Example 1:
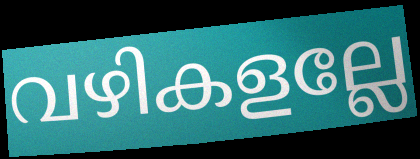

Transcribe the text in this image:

വഴികളല്ലേ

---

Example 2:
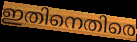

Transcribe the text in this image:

ഇതിനെതിരെ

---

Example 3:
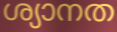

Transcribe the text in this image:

ശ്യാനത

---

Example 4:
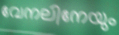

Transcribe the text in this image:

വേനലിനേയും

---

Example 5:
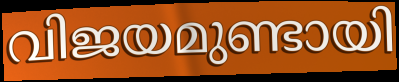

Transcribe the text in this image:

വിജയമുണ്ടായി